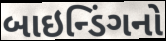
બાઇન્ડિંગનો